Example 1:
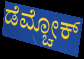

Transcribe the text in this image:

ಡೆಮ್ಚೋಕ್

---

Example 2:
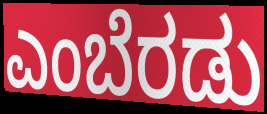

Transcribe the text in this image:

ಎಂಬೆರಡು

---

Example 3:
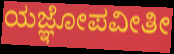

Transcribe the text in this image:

ಯಜ್ಞೋಪವೀತೀ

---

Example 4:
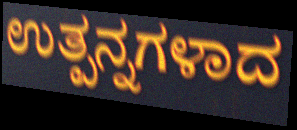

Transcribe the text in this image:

ಉತ್ಪನ್ನಗಳಾದ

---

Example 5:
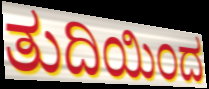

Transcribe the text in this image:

ತುದಿಯಿಂದ